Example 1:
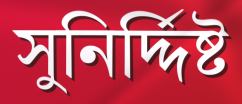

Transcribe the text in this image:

সুনির্দ্দিষ্ট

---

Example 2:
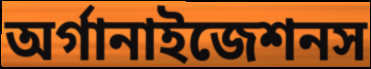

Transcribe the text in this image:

অর্গানাইজেশনস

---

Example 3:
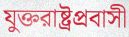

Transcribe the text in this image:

যুক্তরাষ্ট্রপ্রবাসী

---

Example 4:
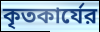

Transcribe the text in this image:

কৃতকার্যের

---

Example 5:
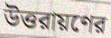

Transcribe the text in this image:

উত্তরায়ণের